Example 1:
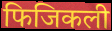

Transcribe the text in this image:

फिजिकली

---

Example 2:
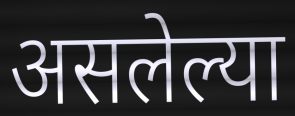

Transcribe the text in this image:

असलेल्या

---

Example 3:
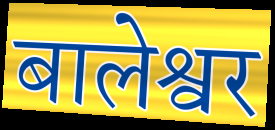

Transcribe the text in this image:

बालेश्वर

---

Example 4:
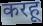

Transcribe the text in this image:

करहू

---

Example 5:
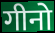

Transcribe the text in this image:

गीनो